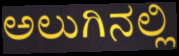
ಅಲುಗಿನಲ್ಲಿ